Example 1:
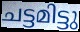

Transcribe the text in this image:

ചട്ടമിട്ടു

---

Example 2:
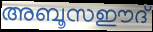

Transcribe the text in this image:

അബൂസഈദ്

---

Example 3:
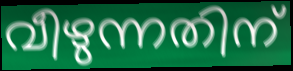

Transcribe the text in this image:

വീഴുന്നതിന്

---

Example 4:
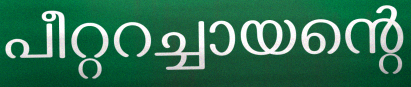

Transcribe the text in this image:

പീറ്ററച്ചായന്റെ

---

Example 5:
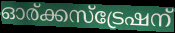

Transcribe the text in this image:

ഓര്ക്കസ്ട്രേഷന്